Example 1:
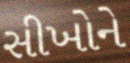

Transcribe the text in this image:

સીખોને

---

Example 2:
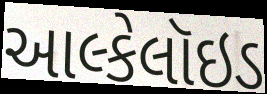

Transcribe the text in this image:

આલ્કેલૉઇડ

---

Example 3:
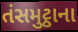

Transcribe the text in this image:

તંસમુટ્ઠાના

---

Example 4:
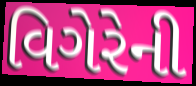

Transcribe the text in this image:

વિગેરેની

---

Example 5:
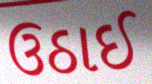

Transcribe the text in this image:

ઉઠાઈ